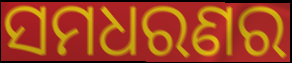
ସମଧରଣର